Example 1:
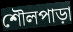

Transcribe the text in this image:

শৌলপাড়া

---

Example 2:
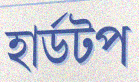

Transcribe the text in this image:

হার্ডটপ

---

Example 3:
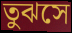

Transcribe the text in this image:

তুঝসে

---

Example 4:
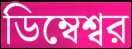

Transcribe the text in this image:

ডিম্বেশ্বর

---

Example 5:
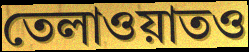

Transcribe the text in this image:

তেলাওয়াতও